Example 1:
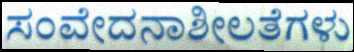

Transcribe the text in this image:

ಸಂವೇದನಾಶೀಲತೆಗಳು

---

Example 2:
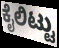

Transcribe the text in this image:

ಕೈಲಿಟ್ಟು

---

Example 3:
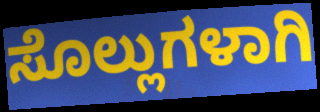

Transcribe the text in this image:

ಸೊಲ್ಲುಗಳಾಗಿ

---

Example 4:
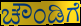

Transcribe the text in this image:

ಚೌಂಡಿಗೆ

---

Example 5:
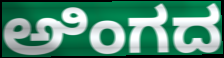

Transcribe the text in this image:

ಅಿಂಗದ